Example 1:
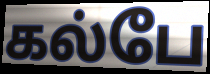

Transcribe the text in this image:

கல்பே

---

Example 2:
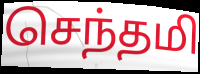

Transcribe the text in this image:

செந்தமி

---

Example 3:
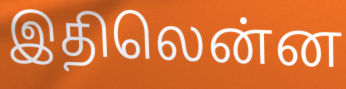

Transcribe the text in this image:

இதிலென்ன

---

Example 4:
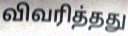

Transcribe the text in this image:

விவரித்தது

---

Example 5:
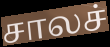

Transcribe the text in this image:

சாலச்